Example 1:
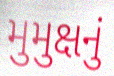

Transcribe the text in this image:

મુમુક્ષનું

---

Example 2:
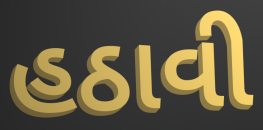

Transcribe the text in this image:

હઠાવી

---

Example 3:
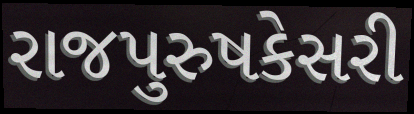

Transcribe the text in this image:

રાજપુરુષકેસરી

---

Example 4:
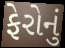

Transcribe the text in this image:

ફેરોનું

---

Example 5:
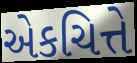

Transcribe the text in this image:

એકચિત્તે